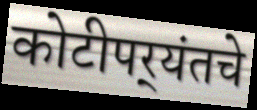
कोटीपर्यंतचे